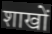
शाखों